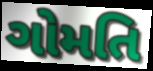
ગોમતિ